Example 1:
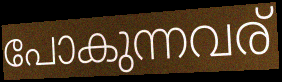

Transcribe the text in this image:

പോകുന്നവര്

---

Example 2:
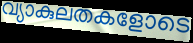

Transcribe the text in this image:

വ്യാകുലതകളോടെ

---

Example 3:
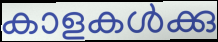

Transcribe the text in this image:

കാളകൾക്കു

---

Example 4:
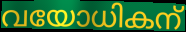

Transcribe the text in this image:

വയോധികന്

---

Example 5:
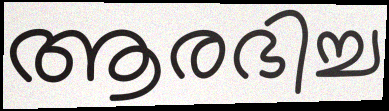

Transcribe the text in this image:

ആരഭിച്ച